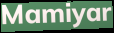
Mamiyar